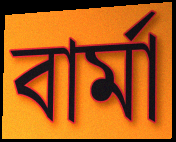
বার্মা